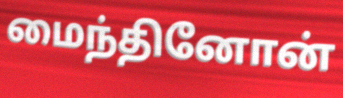
மைந்தினோன்